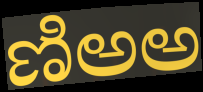
ణిఅఅ